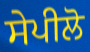
ਸੇਪੀਲੋ